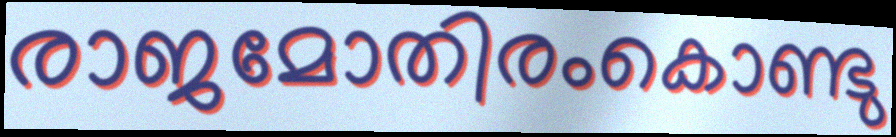
രാജമോതിരംകൊണ്ടു